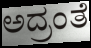
ಅದ್ರಂತೆ